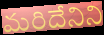
మరిదేనిని